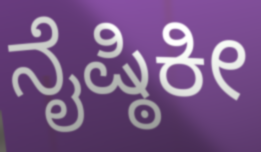
ನೈಷ್ಠಿಕೀ